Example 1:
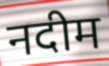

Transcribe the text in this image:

नदीम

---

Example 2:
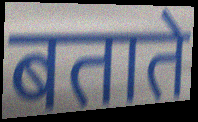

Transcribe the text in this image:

बताते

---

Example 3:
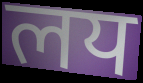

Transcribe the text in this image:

लय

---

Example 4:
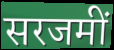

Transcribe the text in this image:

सरजमीं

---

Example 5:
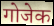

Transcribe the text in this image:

गोजेक